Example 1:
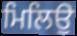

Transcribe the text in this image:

ਮਿਲਿਉ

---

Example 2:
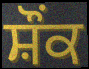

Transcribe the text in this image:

ਸ਼ੌਂਕ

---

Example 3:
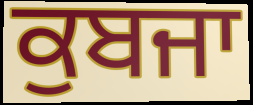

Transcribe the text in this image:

ਕੁਬਜਾ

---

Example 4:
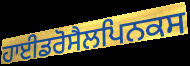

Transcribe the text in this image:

ਹਾਈਡਰੋਸੈਲਪਿਨਕਸ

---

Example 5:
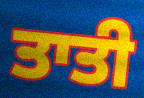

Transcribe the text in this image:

ਤਾਤੀ